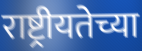
राष्ट्रीयतेच्या